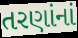
તરણાંનાં